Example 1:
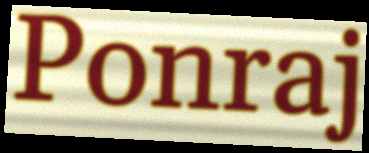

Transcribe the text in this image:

Ponraj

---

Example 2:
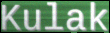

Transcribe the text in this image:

Kulak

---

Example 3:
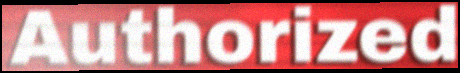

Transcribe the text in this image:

Authorized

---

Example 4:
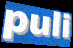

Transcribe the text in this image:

puli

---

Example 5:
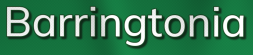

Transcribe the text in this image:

Barringtonia